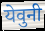
येवुनी